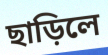
ছাড়িলে